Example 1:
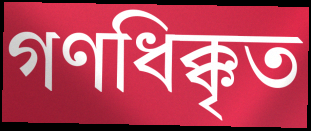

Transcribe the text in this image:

গণধিক্কৃত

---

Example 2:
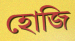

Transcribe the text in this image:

হোজি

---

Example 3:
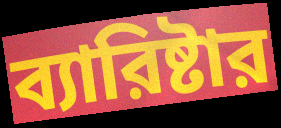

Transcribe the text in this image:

ব্যারিষ্টার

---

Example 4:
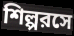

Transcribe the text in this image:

শিল্পরসে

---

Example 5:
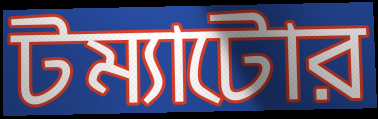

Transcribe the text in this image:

টম্যাটোর